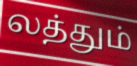
லத்தும்